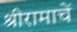
श्रीरामाचें